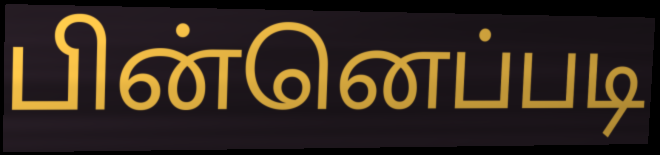
பின்னெப்படி